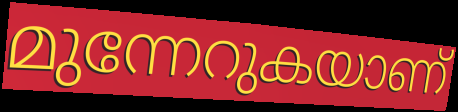
മുന്നേറുകയാണ്